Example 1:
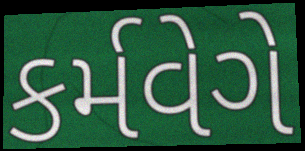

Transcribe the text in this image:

કર્મવેગે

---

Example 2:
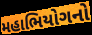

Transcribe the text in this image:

મહાભિયોગનો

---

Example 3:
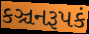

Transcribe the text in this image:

કઞ્ચનરૂપકં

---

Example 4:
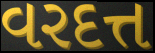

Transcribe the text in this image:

વરદત્ત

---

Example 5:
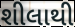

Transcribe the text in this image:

શીલાથી